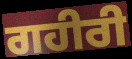
ਗਹੀਰੀ